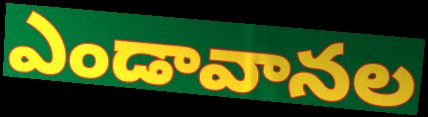
ఎండావానల